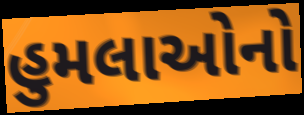
હુમલાઓનો